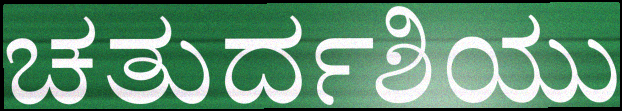
ಚತುರ್ದಶಿಯು